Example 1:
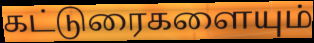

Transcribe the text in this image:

கட்டுரைகளையும்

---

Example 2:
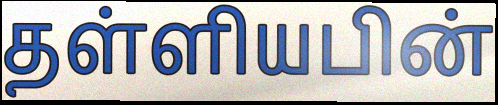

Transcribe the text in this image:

தள்ளியபின்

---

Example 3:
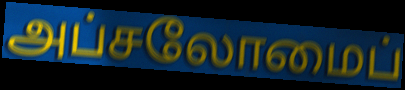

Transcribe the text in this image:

அப்சலோமைப்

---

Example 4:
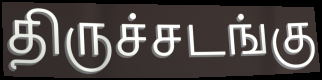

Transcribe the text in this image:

திருச்சடங்கு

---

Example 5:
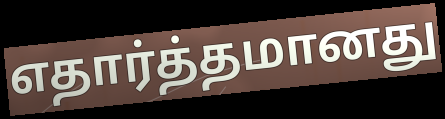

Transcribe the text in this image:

எதார்த்தமானது